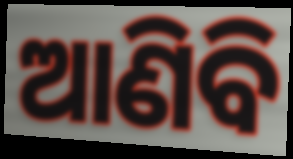
ଆଣିବି